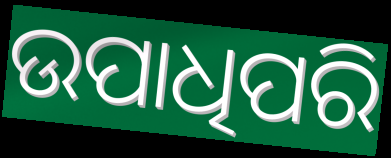
ଉପାଧିପରି